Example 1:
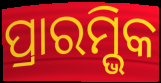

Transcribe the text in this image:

ପ୍ରାରମ୍ଭିକ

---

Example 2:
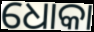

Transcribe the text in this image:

ଧୋକା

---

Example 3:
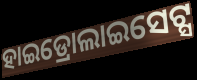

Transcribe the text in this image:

ହାଇଡ୍ରୋଲାଇସେଟ୍ସ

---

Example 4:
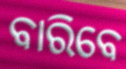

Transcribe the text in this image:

ବାରିବେ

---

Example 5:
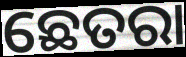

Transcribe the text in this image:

ଛେତରା